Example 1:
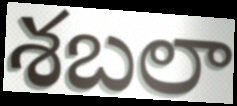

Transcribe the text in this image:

శబలా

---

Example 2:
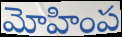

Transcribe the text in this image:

మోహింప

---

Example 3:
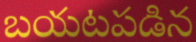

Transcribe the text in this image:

బయటపడిన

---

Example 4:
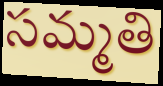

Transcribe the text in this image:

సమ్మతి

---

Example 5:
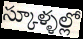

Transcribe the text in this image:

స్కూళ్ళల్లో